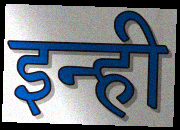
इन्ही